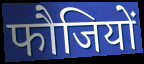
फौजियों